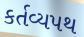
કર્તવ્યપથ